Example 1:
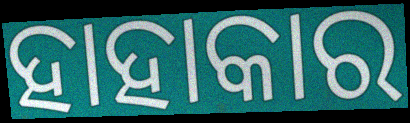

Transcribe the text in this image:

ହାହାକାର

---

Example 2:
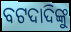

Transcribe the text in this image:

ବଟଦାଦିଙ୍କୁ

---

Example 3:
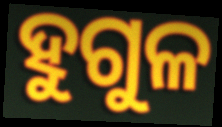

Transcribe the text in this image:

ହୁଗୁଳ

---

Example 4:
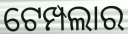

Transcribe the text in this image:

ଟେମ୍ପଲାର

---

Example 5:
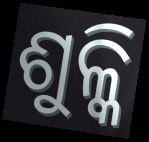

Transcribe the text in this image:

ଶୁଳ୍କି